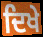
ਦਿਖੇ